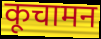
कूचामन